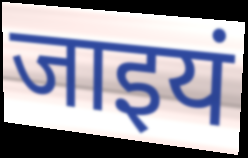
जाइयं